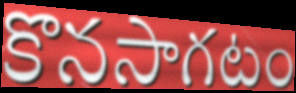
కొనసాగటం